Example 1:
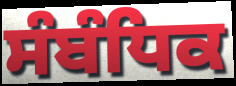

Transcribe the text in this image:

ਸੰਬੰਧਿਕ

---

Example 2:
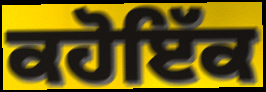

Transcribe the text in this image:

ਕਹੋਇੱਕ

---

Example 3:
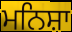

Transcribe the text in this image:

ਮਨਿਸ਼ਾ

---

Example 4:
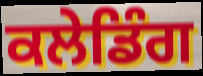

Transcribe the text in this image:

ਕਲੇਡਿੰਗ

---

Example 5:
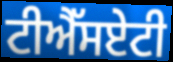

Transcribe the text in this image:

ਟੀਐੱਸਏਟੀ